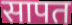
सापत